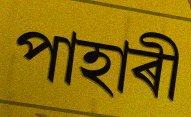
পাহাৰী